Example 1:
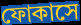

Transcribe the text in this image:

ফোকাসে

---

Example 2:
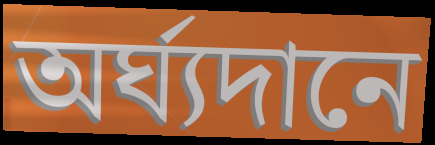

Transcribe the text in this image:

অর্ঘ্যদানে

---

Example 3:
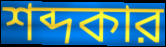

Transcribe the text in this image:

শব্দকার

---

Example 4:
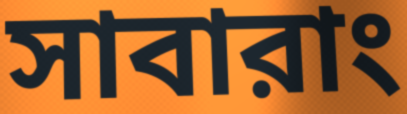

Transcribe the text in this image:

সাবারাং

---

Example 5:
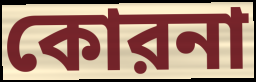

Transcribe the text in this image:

কোরনা